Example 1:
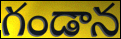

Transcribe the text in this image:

గండాన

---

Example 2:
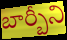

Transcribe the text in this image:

బార్బీని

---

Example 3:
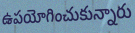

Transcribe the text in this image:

ఉపయోగించుకున్నారు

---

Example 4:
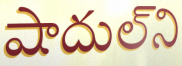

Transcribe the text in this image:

షాదుల్‌ని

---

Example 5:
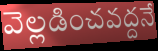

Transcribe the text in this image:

వెల్లడించవద్దనే